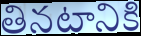
తినటానికి